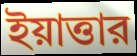
ইয়াত্তার